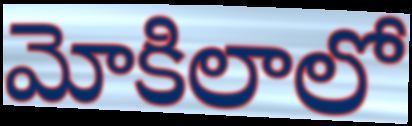
మోకిలాలో